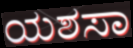
ಯಶಸಾ